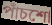
পাঁচশো